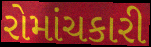
રોમાંચકારી